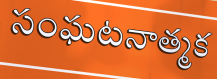
సంఘటనాత్మక